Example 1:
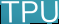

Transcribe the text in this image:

TPU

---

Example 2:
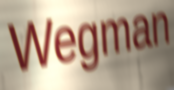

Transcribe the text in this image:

Wegman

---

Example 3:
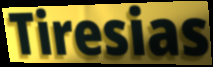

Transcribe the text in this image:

Tiresias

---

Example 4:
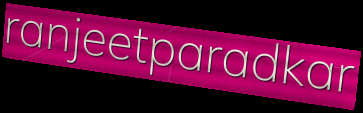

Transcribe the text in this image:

ranjeetparadkar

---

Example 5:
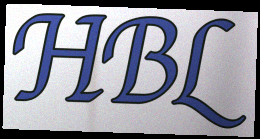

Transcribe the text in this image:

HBL